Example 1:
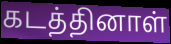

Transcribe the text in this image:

கடத்தினாள்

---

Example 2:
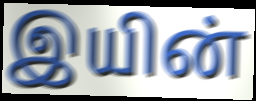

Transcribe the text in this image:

இயின்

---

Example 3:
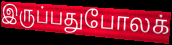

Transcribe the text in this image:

இருப்பதுபோலக்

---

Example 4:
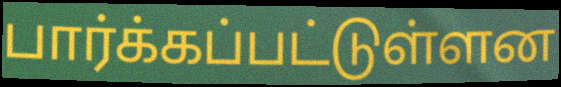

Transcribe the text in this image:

பார்க்கப்பட்டுள்ளன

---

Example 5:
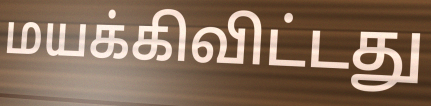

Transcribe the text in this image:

மயக்கிவிட்டது